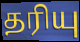
தரியு